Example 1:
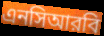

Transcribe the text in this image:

এনসিআরবি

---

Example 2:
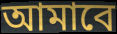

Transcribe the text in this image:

আমাবে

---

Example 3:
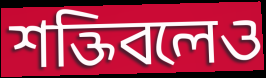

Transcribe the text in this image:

শক্তিবলেও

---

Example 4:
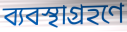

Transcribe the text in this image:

ব্যবস্থাগ্রহণে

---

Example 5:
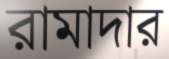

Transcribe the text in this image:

রামাদার